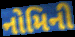
નોમિની